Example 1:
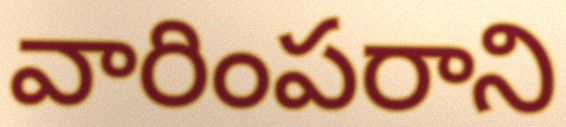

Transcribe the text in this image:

వారింపరాని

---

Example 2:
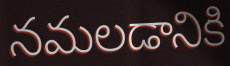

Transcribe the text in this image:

నమలడానికి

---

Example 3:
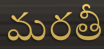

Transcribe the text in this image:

మరతీ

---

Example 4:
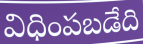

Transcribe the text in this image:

విధింపబడేది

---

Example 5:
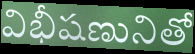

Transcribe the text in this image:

విభీషణునితో